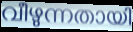
വീഴുന്നതായി